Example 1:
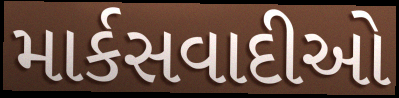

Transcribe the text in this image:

માર્કસવાદીઓ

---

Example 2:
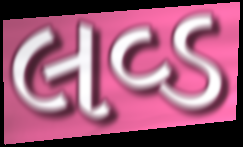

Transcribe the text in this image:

લવ્ડ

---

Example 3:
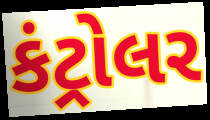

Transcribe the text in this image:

કંટ્રોલર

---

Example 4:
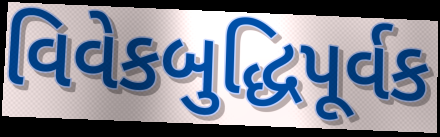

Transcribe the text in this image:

વિવેકબુદ્ધિપૂર્વક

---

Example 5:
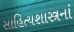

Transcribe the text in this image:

સાહિત્યશાસ્ત્રનાં